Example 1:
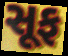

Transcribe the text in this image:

સૂફ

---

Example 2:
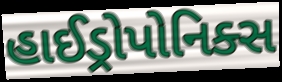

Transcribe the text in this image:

હાઈડ્રોપોનિક્સ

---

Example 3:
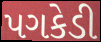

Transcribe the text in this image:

પગકેડી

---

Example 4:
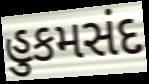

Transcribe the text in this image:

હુકમસંદ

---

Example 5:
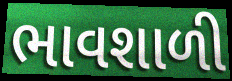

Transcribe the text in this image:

ભાવશાળી